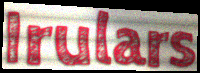
Irulars